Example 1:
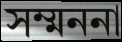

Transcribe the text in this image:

সম্মননা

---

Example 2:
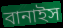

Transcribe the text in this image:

বানাইস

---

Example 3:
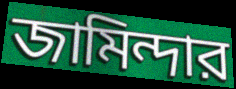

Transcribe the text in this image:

জামিন্দার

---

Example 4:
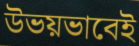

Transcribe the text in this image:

উভয়ভাবেই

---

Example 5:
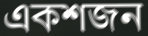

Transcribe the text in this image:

একশজন